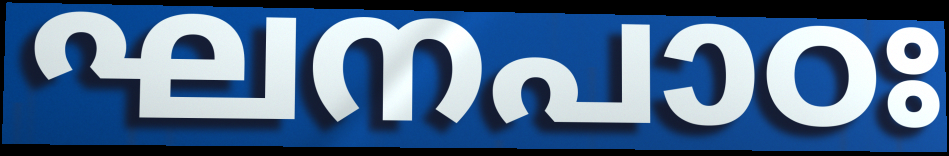
ഘനപാഠഃ